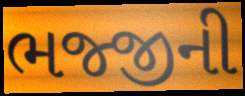
ભજ્જીની